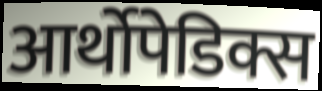
आर्थोपेडिक्स